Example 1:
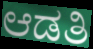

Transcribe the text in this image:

ಆಡತಿ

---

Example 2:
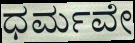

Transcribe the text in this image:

ಧರ್ಮವೇ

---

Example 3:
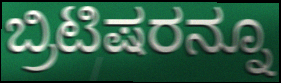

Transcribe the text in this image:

ಬ್ರಿಟಿಷರನ್ನೂ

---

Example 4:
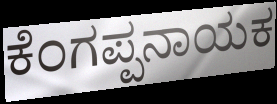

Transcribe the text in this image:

ಕೆಂಗಪ್ಪನಾಯಕ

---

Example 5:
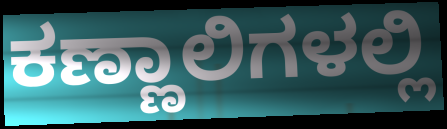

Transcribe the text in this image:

ಕಣ್ಣಾಲಿಗಳಲ್ಲಿ